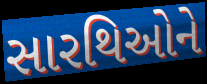
સારથિઓને